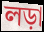
লড়া